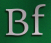
Bf